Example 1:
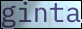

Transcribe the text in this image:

ginta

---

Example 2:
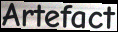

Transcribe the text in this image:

Artefact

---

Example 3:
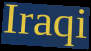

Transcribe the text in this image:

Iraqi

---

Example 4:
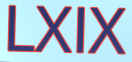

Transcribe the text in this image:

LXIX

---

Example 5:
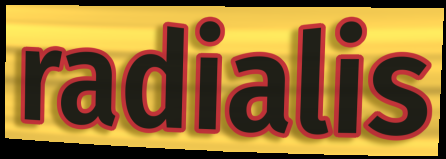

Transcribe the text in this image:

radialis